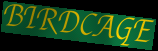
BIRDCAGE